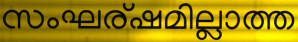
സംഘര്ഷമില്ലാത്ത